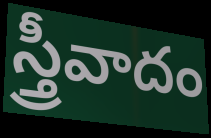
స్త్రీవాదం